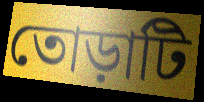
তোড়াটি